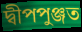
দ্বীপপুঞ্জত